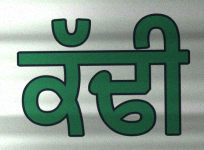
ਕੱਢੀ